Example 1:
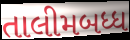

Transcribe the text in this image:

તાલીમબધ્ધ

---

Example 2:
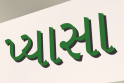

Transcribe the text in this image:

પ્યાસા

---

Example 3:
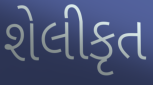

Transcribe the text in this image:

શેલીકૃત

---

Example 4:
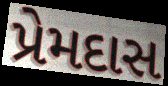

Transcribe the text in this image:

પ્રેમદાસ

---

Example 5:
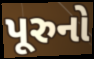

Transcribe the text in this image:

પૂરુનો